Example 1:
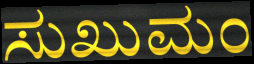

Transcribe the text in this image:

ಸುಖುಮಂ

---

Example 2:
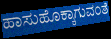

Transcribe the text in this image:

ಹಾಸುಹೊಕ್ಕಾಗುವಂತೆ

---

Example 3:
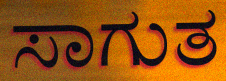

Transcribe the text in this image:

ಸಾಗುತ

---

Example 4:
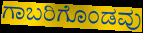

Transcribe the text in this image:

ಗಾಬರಿಗೊಂಡವು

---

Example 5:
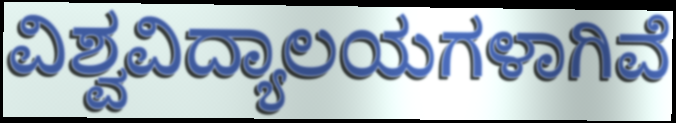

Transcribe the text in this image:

ವಿಶ್ವವಿದ್ಯಾಲಯಗಳಾಗಿವೆ